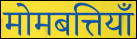
मोमबत्तियाँ